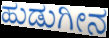
ಹುಡುಗೀನ